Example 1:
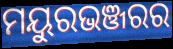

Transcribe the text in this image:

ମୟୁରଭଞ୍ଜରର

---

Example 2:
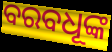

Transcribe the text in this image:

ବରବଧୂଙ୍କ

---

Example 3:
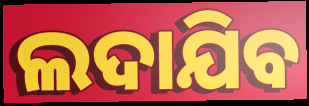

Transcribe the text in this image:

ଲଦାଯିବ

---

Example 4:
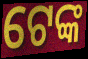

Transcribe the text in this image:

ଟେଙ୍କ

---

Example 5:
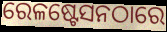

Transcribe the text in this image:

ରେଳଷ୍ଟେସନଠାରେ